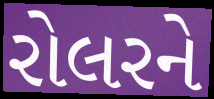
રોલરને